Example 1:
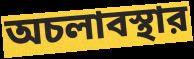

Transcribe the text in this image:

অচলাবস্থার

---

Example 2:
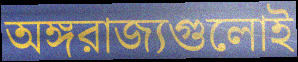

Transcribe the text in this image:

অঙ্গরাজ্যগুলোই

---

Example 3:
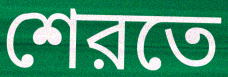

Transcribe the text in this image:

শেরতে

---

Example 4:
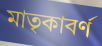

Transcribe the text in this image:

মাতৃকাবর্ণ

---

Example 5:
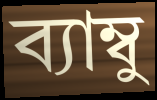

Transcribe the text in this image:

ব্যাম্বু